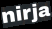
nirja